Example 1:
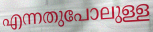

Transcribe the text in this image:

എന്നതുപോലുള്ള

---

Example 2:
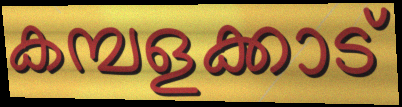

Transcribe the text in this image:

കമ്പളക്കാട്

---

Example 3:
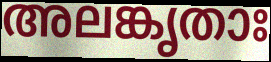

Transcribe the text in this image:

അലങ്കൃതാഃ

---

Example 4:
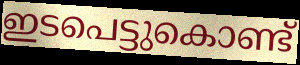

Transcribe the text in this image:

ഇടപെട്ടുകൊണ്ട്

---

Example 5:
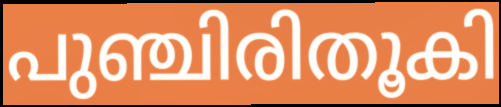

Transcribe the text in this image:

പുഞ്ചിരിതൂകി